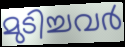
മുടിച്ചവർ